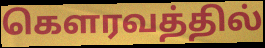
கௌரவத்தில்